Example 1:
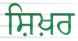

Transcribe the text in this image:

ਸ਼ਿਖ਼ਰ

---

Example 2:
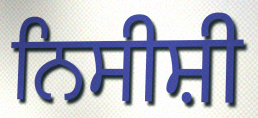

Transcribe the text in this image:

ਨਿਸੀਸ਼ੀ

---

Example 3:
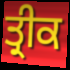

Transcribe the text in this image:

ਤ੍ਰੀਕ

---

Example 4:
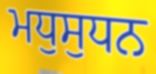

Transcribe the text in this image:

ਮਧੁਸੁਧਨ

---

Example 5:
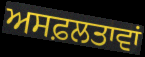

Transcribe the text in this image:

ਅਸਫ਼ਲਤਾਵਾਂ